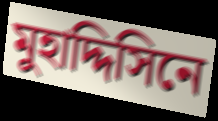
মুহাদ্দিসিনে